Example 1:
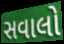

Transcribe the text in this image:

સવાલો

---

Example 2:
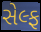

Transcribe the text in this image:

સેલ્ફ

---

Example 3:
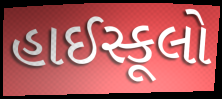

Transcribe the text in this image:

હાઈસ્કૂલો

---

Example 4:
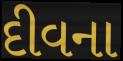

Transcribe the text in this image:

દીવના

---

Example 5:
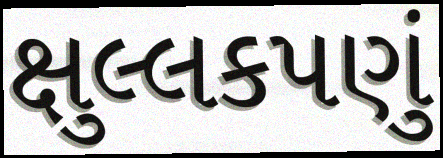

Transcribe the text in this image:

ક્ષુલ્લકપણું